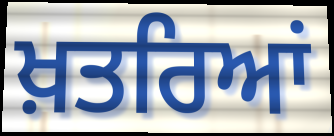
ਖ਼ਤਰਿਆਂ